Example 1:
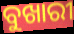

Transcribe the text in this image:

ବୁଖାରୀ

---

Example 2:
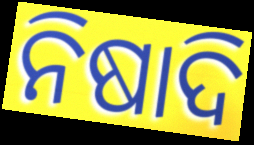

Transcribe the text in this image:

ନିଷାଦି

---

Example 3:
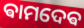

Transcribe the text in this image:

ଵାମଦେଵ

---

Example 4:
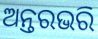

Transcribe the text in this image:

ଅନ୍ତରଭରି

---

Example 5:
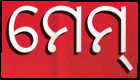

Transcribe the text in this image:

ମେମ୍